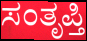
ಸಂತೃಪ್ತಿ